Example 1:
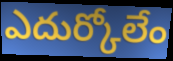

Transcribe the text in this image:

ఎదుర్కోలేం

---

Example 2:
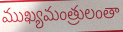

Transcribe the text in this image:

ముఖ్యమంత్రులంతా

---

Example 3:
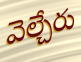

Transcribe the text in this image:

వెల్చేరు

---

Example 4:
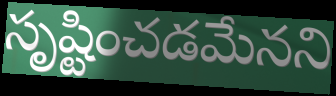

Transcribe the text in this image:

సృష్టించడమేనని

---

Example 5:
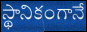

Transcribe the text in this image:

స్థానికంగానే